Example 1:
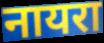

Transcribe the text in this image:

नायरा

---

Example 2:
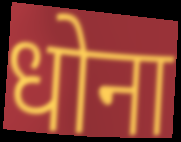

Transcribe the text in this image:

धोना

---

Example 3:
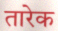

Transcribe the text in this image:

तारेक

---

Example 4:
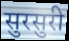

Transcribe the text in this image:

सुरसुरी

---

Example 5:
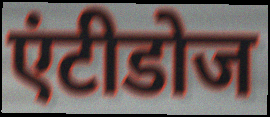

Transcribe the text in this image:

एंटीडोज